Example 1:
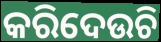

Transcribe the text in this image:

କରିଦେଉଚି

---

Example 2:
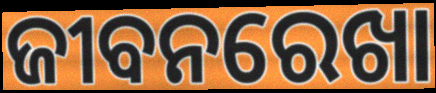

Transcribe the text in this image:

ଜୀବନରେଖା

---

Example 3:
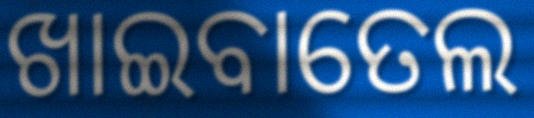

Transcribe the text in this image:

ଖାଇବାତେଲ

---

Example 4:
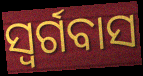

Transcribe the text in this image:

ସ୍ଵର୍ଗବାସ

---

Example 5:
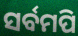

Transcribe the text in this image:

ସର୍ବମପି